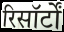
रिसॉर्टों